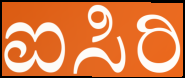
ಐಸಿರಿ